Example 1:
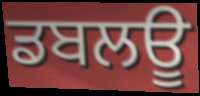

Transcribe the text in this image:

ਡਬਲਊ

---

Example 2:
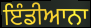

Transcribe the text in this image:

ਇੰਡੀਆਨਾ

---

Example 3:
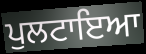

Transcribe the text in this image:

ਪੁਲਟਾਇਆ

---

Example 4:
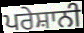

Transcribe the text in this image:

ਪਰੇਸ਼ਾਨੀ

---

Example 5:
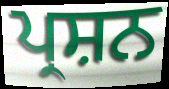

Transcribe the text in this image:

ਪ੍ਰਸ਼ਨ